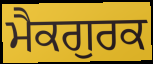
ਮੈਕਗੁਰਕ